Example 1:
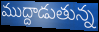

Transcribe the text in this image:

ముద్దాడుతున్న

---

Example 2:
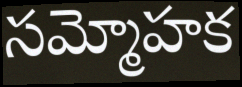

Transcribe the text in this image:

సమ్మోహక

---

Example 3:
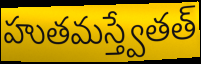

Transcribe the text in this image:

హుతమస్త్వేతత్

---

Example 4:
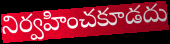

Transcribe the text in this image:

నిర్వహించకూడదు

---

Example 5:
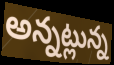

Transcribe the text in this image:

అన్నట్లున్న